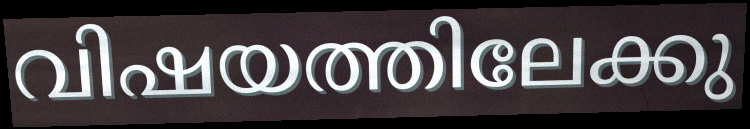
വിഷയത്തിലേക്കു